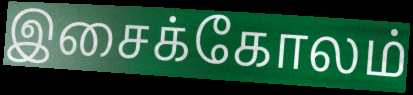
இசைக்கோலம்